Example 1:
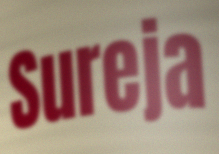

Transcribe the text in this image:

Sureja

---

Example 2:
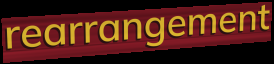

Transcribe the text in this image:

rearrangement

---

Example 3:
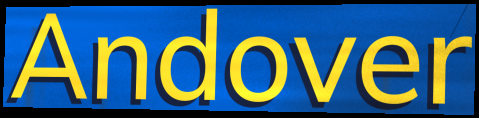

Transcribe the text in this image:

Andover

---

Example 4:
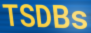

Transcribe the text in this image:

TSDBs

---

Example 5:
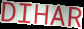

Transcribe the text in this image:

DIHAR